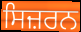
ਸਿਜ਼ਰਨ